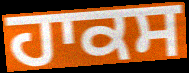
ਹਾਕਸ